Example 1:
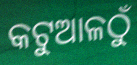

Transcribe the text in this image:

କଟୁଆଳଠୁଁ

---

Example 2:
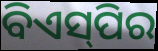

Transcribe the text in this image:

ବିଏସ୍‌ପିର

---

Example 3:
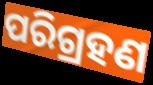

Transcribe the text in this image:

ପରିଗ୍ରହଣ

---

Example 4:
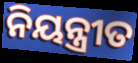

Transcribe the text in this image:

ନିୟନ୍ତ୍ରୀତ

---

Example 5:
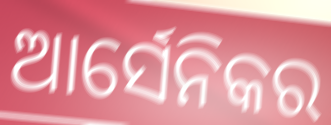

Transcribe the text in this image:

ଆର୍ସେନିକର